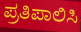
ಪ್ರತಿಪಾಲಿಸಿ